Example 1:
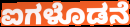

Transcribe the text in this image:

ಐಗಳೊಡನೆ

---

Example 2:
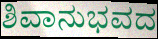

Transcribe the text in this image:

ಶಿವಾನುಭವದ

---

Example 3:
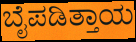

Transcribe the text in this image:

ಬೈಪಡಿತ್ತಾಯ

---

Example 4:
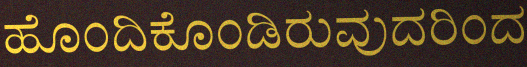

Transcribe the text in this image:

ಹೊಂದಿಕೊಂಡಿರುವುದರಿಂದ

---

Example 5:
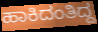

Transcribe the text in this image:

ಹಾಕಿದಂತಿದ್ದ